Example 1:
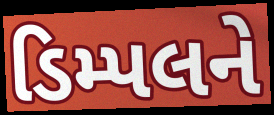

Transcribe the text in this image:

ડિમ્પલને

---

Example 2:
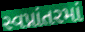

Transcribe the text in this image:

સ્વપ્નાંતરમાં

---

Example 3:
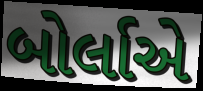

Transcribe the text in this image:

બોર્લાએ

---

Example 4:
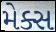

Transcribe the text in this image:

મેક્સ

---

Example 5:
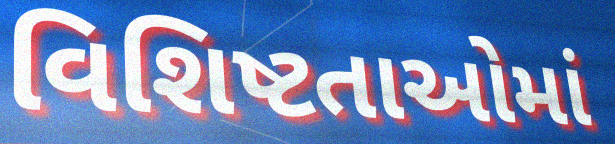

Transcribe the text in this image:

વિશિષ્ટતાઓમાં